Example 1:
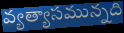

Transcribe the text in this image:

వ్యత్యాసమున్నది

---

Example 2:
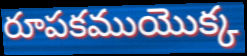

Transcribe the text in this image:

రూపకముయొక్క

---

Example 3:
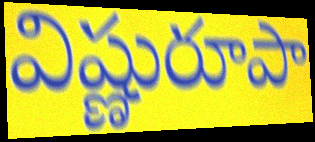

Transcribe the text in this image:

విష్ణురూపా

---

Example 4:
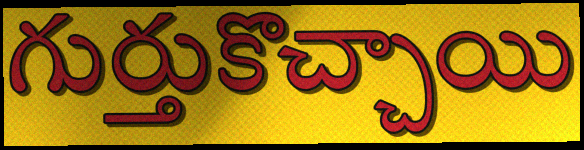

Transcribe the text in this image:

గుర్తుకొచ్చాయి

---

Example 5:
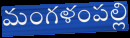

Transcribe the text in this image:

మంగళంపల్లి